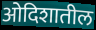
ओदिशातील